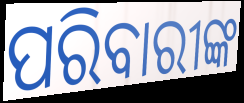
ପରିବାରୀଙ୍କ